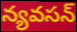
న్యవసన్